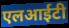
एलआईटी